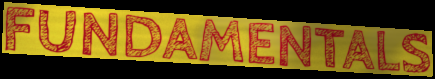
FUNDAMENTALS